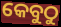
କେବୁଠୁ